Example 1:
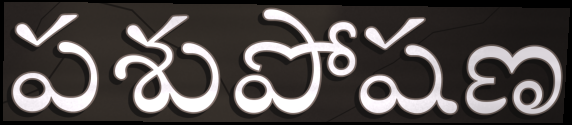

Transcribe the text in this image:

పశుపోషణ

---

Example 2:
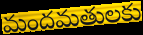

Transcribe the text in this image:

మందమతులకు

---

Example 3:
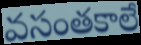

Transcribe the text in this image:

వసంతకాలే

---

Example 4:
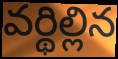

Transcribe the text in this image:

వర్థిల్లిన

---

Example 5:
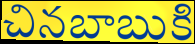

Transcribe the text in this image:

చినబాబుకి